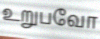
உறுபவோ